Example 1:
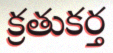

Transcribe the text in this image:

క్రతుకర్త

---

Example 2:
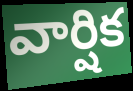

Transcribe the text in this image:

వార్షిక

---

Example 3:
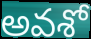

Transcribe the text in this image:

అవశో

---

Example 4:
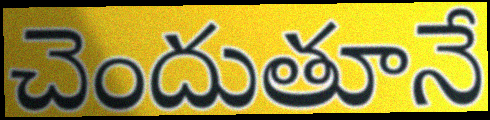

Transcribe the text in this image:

చెందుతూనే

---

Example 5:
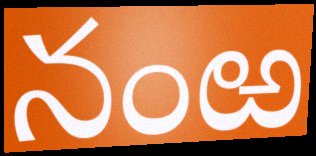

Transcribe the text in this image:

నంఱ